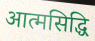
आत्मसिद्धि